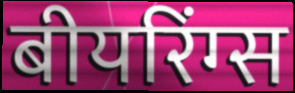
बीयरिंग्स